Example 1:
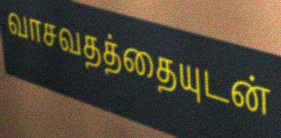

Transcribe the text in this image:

வாசவதத்தையுடன்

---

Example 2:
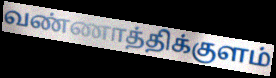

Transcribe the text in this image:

வண்ணாத்திக்குளம்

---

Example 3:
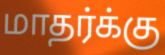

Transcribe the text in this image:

மாதர்க்கு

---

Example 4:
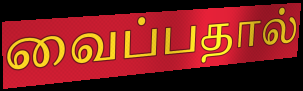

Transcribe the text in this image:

வைப்பதால்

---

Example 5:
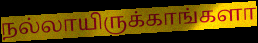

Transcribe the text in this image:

நல்லாயிருக்காங்களா